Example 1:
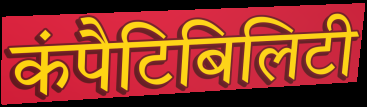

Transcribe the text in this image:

कंपैटिबिलिटी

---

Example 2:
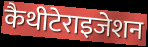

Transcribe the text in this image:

कैथीटेराइजेशन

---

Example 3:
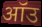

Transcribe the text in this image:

ऑउ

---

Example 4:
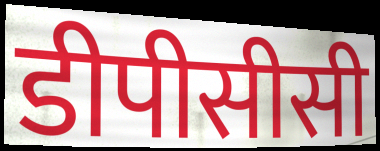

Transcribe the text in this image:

डीपीसीसी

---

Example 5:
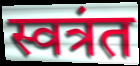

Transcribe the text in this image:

स्वत्रंत